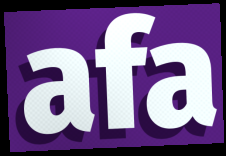
afa